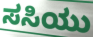
ಸಸಿಯು